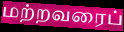
மற்றவரைப்